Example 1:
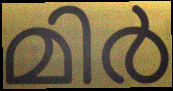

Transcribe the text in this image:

മിർ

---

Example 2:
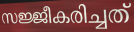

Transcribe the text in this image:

സജ്ജീകരിച്ചത്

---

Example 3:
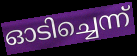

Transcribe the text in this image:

ഓടിച്ചെന്ന്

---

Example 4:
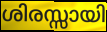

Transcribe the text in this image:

ശിരസ്സായി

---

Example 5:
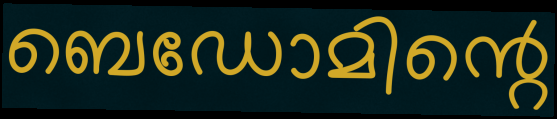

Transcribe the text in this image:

ബെഡോമിന്റെ